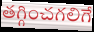
తగ్గించగలిగే